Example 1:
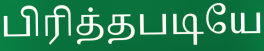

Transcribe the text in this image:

பிரித்தபடியே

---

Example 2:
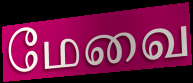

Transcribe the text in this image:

மேவை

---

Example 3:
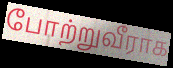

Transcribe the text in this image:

போற்றுவீராக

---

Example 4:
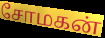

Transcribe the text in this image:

சோமகன்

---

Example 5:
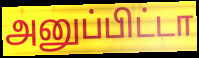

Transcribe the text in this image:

அனுப்பிட்டா